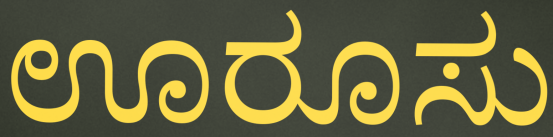
ಊರೂಸು